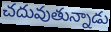
చదువుతున్నాడు